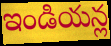
ఇండియన్ల